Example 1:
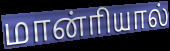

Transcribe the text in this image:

மான்ரியால்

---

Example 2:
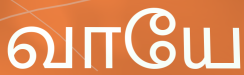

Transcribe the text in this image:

வாயே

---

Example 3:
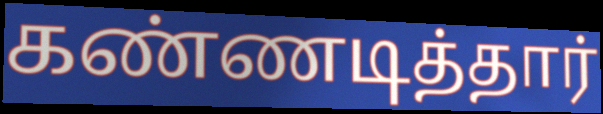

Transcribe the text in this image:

கண்ணடித்தார்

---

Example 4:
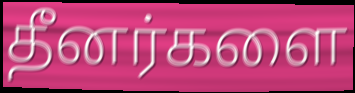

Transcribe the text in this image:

தீனர்களை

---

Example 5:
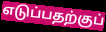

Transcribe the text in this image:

எடுப்பதற்குப்